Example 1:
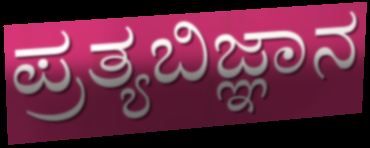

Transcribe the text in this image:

ಪ್ರತ್ಯಬಿಜ್ಞಾನ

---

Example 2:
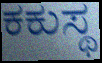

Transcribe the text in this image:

ಕಕುಸ್ಥ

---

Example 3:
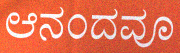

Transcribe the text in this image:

ಆನಂದವೂ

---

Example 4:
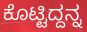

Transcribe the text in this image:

ಕೊಟ್ಟಿದ್ದನ್ನ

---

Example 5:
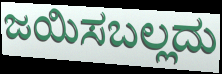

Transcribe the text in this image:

ಜಯಿಸಬಲ್ಲದು